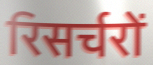
रिसर्चरों